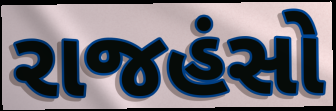
રાજહંસો